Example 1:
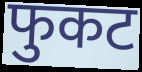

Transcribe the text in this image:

फुकट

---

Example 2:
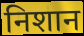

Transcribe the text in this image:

निशान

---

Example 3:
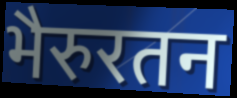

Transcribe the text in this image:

भैरुरतन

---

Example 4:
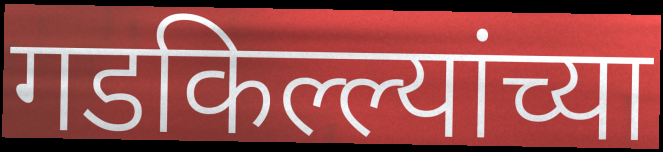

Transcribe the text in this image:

गडकिल्ल्यांच्या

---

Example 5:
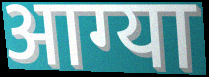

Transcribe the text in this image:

आग्या